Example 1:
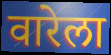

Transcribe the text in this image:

वारेला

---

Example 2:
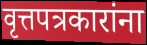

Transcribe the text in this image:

वृत्तपत्रकारांना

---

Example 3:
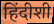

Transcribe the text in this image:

हिंदीशी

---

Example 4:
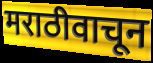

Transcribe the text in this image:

मराठीवाचून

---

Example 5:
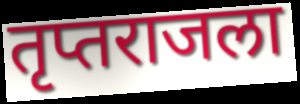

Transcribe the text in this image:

तृप्तराजला